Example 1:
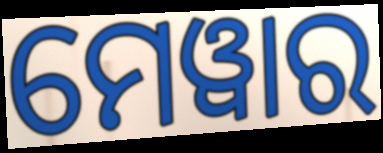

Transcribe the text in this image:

ମେୱାର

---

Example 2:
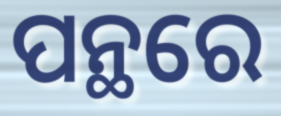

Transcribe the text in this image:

ପନ୍ଥରେ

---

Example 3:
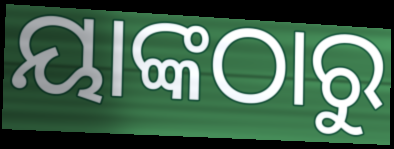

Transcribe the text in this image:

ୟାଙ୍କଠାରୁ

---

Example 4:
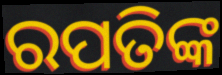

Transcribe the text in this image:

ରପତିଙ୍କ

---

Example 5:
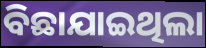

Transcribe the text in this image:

ବିଛାଯାଇଥିଲା